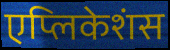
एप्लिकेशंस